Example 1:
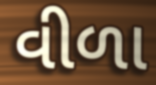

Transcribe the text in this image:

વીળા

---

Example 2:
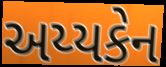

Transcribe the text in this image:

અય્યકેન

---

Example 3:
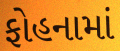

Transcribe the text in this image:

ફોહનામાં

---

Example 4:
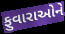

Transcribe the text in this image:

ફુવારાઓને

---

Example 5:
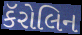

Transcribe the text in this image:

કૅરોલિન